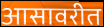
आसावरीत